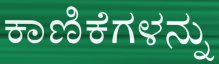
ಕಾಣಿಕೆಗಳನ್ನು